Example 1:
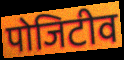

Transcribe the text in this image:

पोजिटीव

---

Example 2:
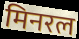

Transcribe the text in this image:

मिनरल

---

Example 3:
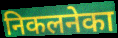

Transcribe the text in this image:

निकलनेका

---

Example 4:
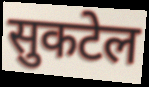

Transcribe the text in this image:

सुकटेल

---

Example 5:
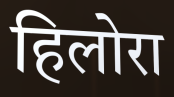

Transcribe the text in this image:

हिलोरा